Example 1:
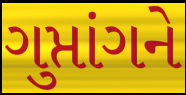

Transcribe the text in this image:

ગુપ્તાંગને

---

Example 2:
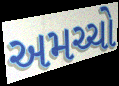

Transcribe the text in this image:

અમચ્ચો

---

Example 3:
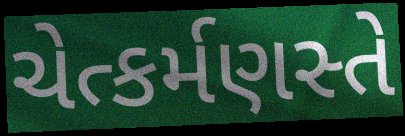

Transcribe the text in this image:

ચેત્કર્મણસ્તે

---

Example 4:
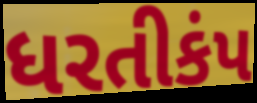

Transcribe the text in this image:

ધરતીકંપ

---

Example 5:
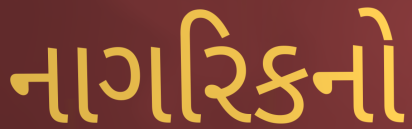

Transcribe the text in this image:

નાગરિકનો